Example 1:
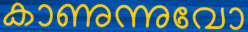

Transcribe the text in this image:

കാണുന്നുവോ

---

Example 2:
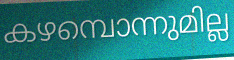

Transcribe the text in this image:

കഴമ്പൊന്നുമില്ല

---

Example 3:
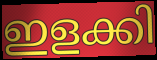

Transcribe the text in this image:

ഇളക്കി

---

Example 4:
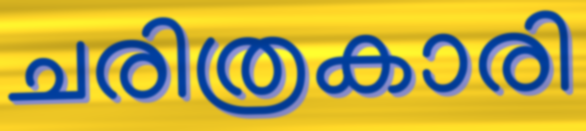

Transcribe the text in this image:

ചരിത്രകാരി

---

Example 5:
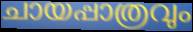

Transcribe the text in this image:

ചായപ്പാത്രവും